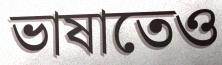
ভাষাতেও